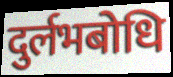
दुर्लभबोधि